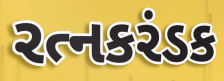
રત્નકરંડક